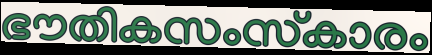
ഭൗതികസംസ്‌കാരം